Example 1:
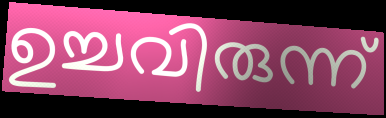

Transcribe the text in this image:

ഉച്ചവിരുന്ന്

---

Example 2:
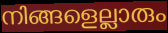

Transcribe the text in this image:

നിങ്ങളെല്ലാരും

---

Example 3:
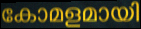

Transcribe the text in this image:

കോമളമായി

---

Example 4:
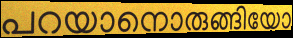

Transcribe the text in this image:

പറയാനൊരുങ്ങിയോ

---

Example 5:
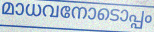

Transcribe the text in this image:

മാധവനോടൊപ്പം